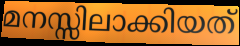
മനസ്സിലാക്കിയത്